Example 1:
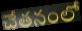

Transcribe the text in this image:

చేతనంలో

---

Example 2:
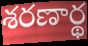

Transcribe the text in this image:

శరణార్థ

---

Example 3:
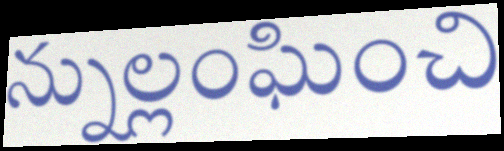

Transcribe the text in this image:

న్నుల్లంఘించి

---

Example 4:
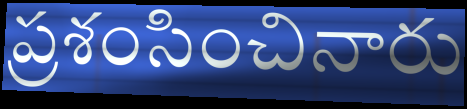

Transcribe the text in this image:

ప్రశంసించినారు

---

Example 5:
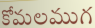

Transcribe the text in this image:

కోమలముగ